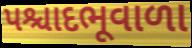
પશ્ચાદભૂવાળા